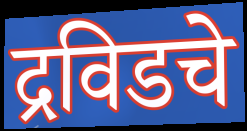
द्रविडचे